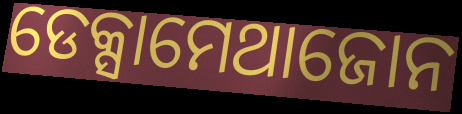
ଡେକ୍ସାମେଥାଜୋନ